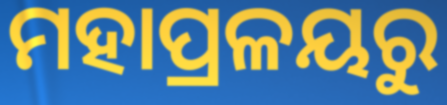
ମହାପ୍ରଳୟରୁ